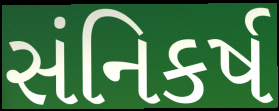
સંનિકર્ષ